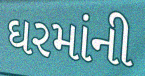
ઘરમાંની